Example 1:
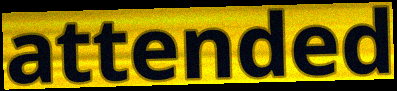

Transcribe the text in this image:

attended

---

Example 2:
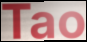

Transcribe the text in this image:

Tao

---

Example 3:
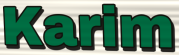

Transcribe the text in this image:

Karim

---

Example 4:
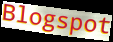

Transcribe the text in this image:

Blogspot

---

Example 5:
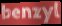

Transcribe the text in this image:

benzyl